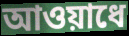
আওয়াধে